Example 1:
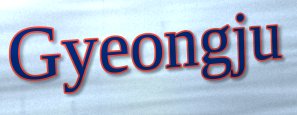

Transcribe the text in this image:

Gyeongju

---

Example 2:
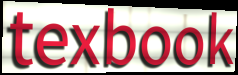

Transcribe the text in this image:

texbook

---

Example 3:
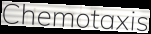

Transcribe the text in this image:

Chemotaxis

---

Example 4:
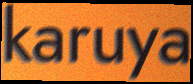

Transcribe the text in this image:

karuya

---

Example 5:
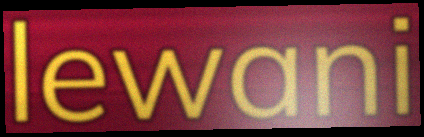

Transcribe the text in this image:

lewani